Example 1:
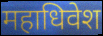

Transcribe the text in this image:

महाधिवेश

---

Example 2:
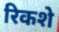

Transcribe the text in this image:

रिकशे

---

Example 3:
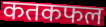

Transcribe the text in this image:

कतकफल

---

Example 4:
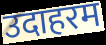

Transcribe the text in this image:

उदाहरम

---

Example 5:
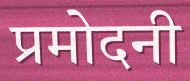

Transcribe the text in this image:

प्रमोदनी